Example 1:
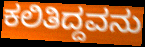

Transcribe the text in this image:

ಕಲಿತಿದ್ದವನು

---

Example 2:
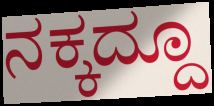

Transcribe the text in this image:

ನಕ್ಕದ್ದೂ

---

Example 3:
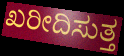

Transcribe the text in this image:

ಖರೀದಿಸುತ್ತ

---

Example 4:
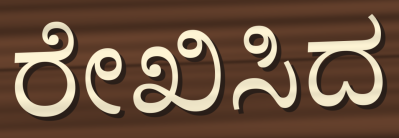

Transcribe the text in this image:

ರೇಖಿಸಿದ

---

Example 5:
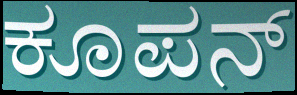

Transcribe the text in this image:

ಕೂಪನ್